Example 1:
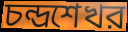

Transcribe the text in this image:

চন্দ্রশেখর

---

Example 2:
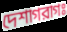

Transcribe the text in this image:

দেশাগরাগঃ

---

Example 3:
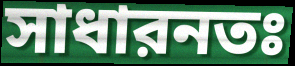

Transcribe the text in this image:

সাধারনতঃ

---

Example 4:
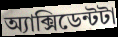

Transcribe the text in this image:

অ্যাক্সিডেন্টটা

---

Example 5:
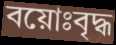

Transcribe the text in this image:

বয়োঃবৃদ্ধ